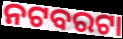
ନଟବରଟା